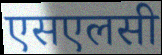
एसएलसी